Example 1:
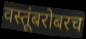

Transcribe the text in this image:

वस्तूंबरोबरच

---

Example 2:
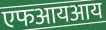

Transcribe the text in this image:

एफआयआय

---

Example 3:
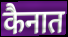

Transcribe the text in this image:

कैनात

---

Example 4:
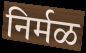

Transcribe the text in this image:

निर्मळ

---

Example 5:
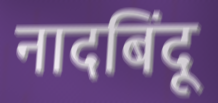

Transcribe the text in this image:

नादबिंदू